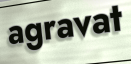
agravat